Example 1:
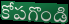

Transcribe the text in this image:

కోపగొండి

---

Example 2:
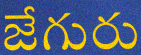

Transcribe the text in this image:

జేగురు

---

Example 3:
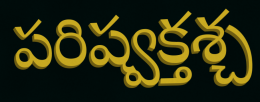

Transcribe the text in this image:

పరిష్వక్తశ్చ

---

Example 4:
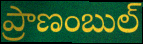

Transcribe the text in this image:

ప్రాణంబుల్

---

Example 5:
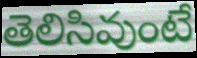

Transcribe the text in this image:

తెలిసివుంటే